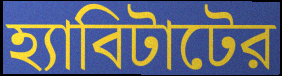
হ্যাবিটাটের